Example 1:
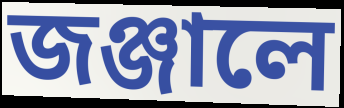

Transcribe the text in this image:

জঞ্জালে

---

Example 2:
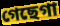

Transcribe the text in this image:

গেছেগা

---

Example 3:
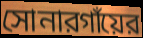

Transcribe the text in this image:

সোনারগাঁয়ের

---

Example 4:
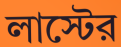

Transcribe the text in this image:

লাস্টের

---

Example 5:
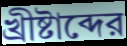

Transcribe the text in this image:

খ্রীষ্টাব্দের